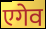
एगेव